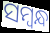
ସମ୍ବନ୍ଧ